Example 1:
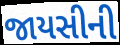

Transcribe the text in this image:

જાયસીની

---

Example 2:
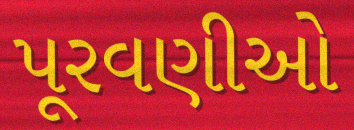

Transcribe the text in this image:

પૂરવણીઓ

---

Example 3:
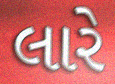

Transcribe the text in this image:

લારે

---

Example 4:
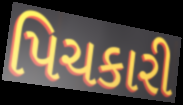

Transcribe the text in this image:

પિચકારી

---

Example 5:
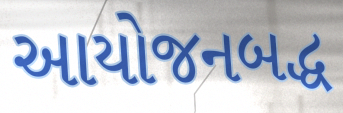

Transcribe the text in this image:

આયોજનબદ્ધ